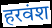
हरवंश